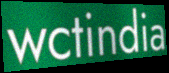
wctindia